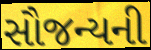
સૌજન્યની